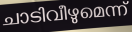
ചാടിവീഴുമെന്ന്